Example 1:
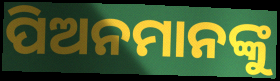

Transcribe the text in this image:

ପିଅନମାନଙ୍କୁ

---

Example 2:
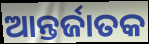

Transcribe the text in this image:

ଆନ୍ତର୍ଜାତକ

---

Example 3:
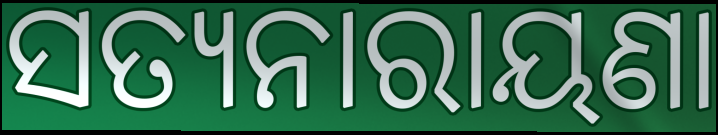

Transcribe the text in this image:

ସତ୍ୟନାରାୟଣା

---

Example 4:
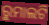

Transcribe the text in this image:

ରୁମାଲଟି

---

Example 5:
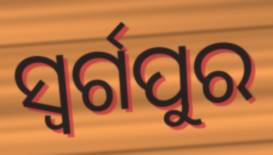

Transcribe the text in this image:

ସ୍ଵର୍ଗପୁର